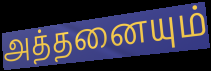
அத்தனையும்